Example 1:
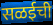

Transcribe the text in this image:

सळईची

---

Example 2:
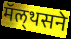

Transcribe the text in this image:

मॅल्थसने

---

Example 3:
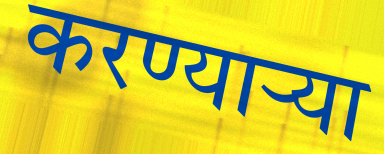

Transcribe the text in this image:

करण्यार्‍या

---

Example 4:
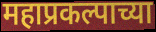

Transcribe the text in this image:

महाप्रकल्पाच्या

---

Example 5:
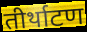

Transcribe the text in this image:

तीर्थाटण